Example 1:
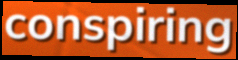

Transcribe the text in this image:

conspiring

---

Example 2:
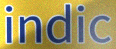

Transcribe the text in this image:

indic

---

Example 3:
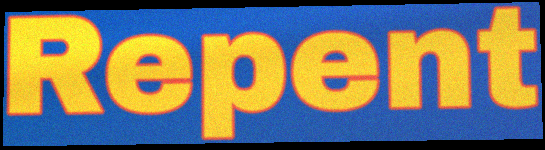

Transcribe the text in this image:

Repent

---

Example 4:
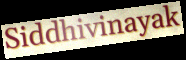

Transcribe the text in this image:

Siddhivinayak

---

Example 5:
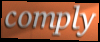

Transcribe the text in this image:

comply